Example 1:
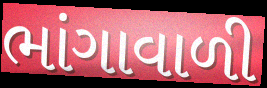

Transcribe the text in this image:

ભાંગાવાળી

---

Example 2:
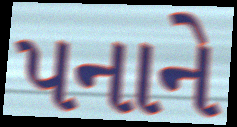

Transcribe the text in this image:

પનાને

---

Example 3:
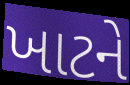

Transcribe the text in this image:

ખાટને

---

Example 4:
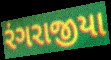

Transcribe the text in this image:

રંગરાજીયા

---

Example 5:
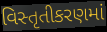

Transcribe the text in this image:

વિસ્તૃતીકરણમાં